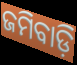
ଜମିବାଡ଼ି